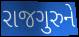
રાજગુરુને